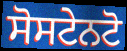
ਸੋਸਟੇਨਟੋ